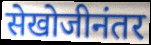
सेखोजीनंतर